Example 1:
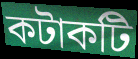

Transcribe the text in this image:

কটাকটি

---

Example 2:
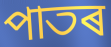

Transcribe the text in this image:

পাতৰ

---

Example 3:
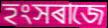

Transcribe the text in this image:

হংসৰাজে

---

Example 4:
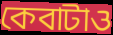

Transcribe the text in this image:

কেবাটাও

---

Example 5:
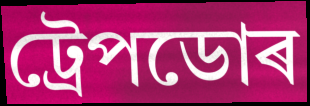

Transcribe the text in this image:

ট্ৰেপডোৰ